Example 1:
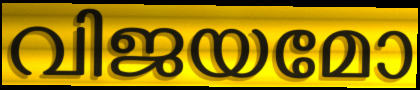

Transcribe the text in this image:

വിജയമോ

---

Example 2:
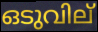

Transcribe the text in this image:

ഒടുവില്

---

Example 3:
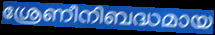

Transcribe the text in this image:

ശ്രേണീനിബദ്ധമായ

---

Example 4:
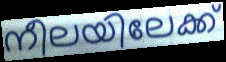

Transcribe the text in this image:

നീലയിലേക്ക്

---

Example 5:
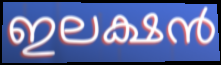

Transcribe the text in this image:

ഇലക്ഷൻ